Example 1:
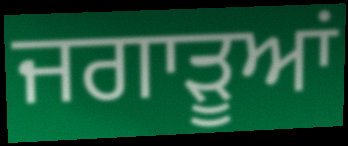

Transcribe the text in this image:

ਜਗਾੜੂਆਂ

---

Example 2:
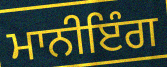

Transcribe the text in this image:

ਮਾਨੀਇੰਗ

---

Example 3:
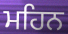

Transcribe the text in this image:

ਮਹਿਨ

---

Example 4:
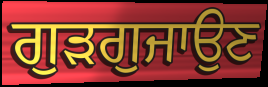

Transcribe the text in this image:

ਗੁੜਗੁਜਾਉਣ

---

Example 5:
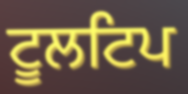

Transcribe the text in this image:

ਟੂਲਟਿਪ